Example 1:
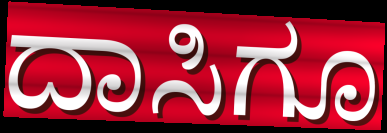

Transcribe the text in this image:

ದಾಸಿಗೂ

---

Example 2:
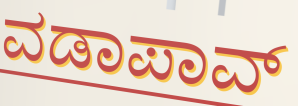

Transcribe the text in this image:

ವಡಾಪಾವ್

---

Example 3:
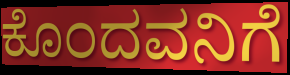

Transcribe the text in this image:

ಕೊಂದವನಿಗೆ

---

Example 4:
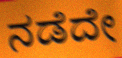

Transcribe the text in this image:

ನಡೆದೇ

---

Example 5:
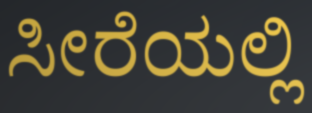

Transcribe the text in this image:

ಸೀರೆಯಲ್ಲಿ